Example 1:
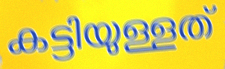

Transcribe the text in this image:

കട്ടിയുള്ളത്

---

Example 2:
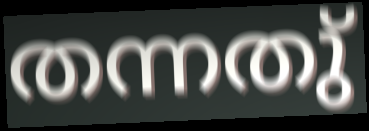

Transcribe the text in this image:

തന്നതു്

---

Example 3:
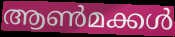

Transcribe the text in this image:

ആൺമക്കൾ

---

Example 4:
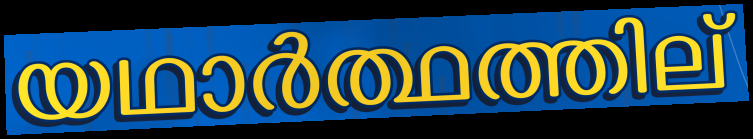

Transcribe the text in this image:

യഥാർത്ഥത്തില്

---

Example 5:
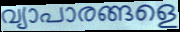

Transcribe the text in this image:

വ്യാപാരങ്ങളെ